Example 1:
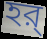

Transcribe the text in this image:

হর্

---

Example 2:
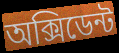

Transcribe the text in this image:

অক্সিডেন্ট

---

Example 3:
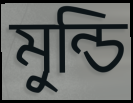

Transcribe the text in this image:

মুন্ডি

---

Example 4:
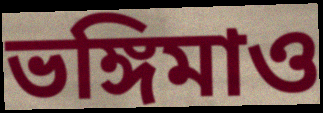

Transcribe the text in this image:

ভঙ্গিমাও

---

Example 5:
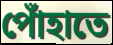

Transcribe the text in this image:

পোঁহাতে